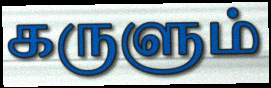
கருளும்